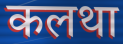
कलथा